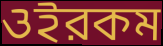
ওইরকম